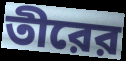
তীরের